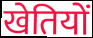
खेतियों